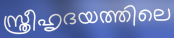
സ്ത്രീഹൃദയത്തിലെ